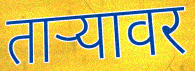
ताऱ्यावर